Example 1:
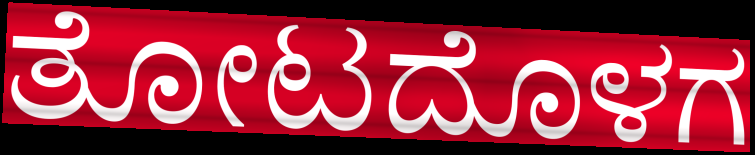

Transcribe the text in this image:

ತೋಟದೊಳಗ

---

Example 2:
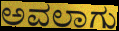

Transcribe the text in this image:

ಅವಲಾಗು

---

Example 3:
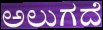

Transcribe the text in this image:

ಅಲುಗದೆ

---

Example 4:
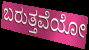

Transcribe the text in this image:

ಬರುತ್ತವೆಯೋ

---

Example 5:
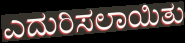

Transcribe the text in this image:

ಎದುರಿಸಲಾಯಿತು